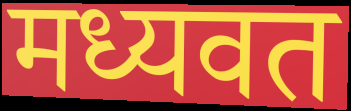
मध्यवत